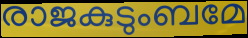
രാജകുടുംബമേ